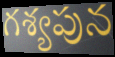
గశ్యపున